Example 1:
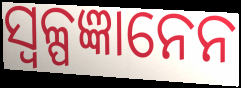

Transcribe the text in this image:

ସ୍ଵଳ୍ପଜ୍ଞାନେନ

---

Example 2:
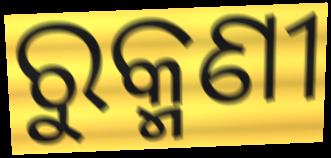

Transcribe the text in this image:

ରୁକ୍ମଣୀ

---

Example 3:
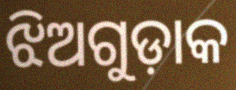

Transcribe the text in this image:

ଝିଅଗୁଡ଼ାକ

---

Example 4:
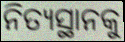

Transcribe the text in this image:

ନିତ୍ୟସ୍ଥାନକୁ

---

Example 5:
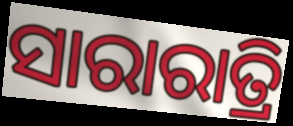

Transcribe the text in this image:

ସାରାରାତ୍ରି